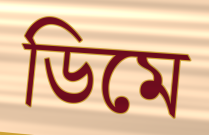
ডিমে